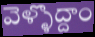
వెళ్ళొద్దాం